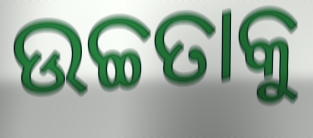
ଉଚ୍ଚତାକୁ